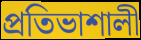
প্ৰতিভাশালী